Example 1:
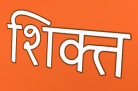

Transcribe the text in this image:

शिक्त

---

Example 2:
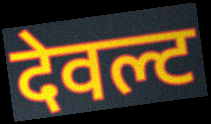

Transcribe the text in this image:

देवल्ट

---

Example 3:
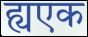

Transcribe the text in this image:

ह्यएक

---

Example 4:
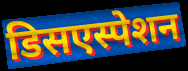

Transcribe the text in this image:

डिसएस्पेशन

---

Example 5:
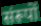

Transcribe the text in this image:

संरूपों